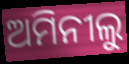
ଅମିନୀଲୁ